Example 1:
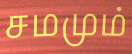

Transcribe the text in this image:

சமமும்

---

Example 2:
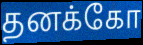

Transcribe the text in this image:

தனக்கோ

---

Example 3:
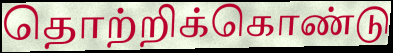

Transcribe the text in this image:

தொற்றிக்கொண்டு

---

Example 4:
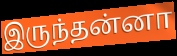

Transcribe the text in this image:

இருந்தன்னா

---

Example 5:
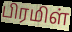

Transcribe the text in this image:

பிரமிள்